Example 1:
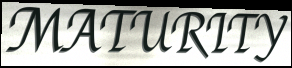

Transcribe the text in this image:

MATURITY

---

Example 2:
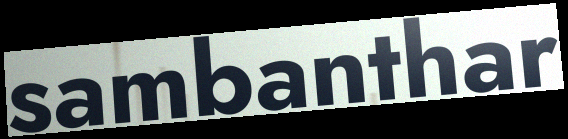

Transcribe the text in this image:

sambanthar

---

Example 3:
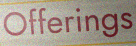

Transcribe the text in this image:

Offerings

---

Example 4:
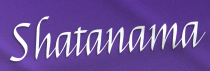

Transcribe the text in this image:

Shatanama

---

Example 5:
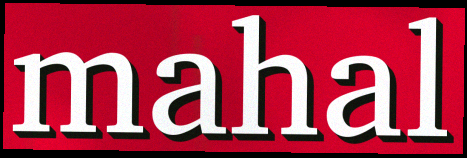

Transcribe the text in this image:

mahal